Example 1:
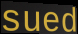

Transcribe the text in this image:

sued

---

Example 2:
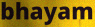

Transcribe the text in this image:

bhayam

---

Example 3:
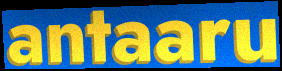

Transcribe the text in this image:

antaaru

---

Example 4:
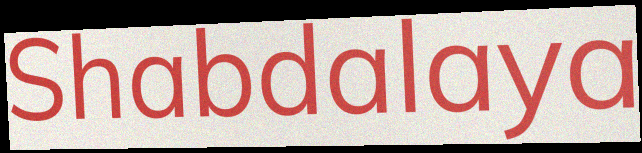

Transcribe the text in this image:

Shabdalaya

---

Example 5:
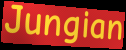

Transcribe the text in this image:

Jungian